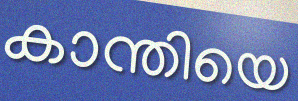
കാന്തിയെ